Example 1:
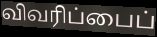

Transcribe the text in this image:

விவரிப்பைப்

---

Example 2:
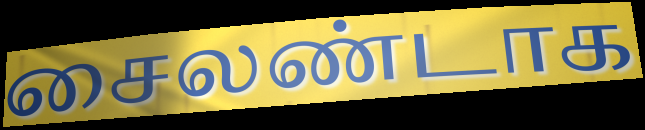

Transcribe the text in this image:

சைலண்டாக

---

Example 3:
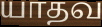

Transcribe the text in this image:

யாதவ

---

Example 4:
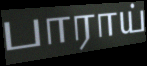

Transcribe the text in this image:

பாராய்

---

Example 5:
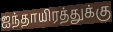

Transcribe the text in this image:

ஐந்தாயிரத்துக்கு